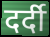
दर्दी